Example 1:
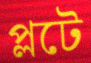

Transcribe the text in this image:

প্লটে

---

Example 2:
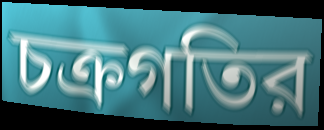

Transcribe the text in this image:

চক্রগতির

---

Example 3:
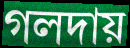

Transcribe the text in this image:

গলদায়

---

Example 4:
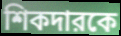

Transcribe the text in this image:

শিকদারকে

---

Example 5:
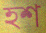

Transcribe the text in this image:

হশ